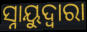
ସ୍ନାୟୁଦ୍ଵାରା